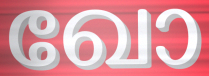
ഖോ